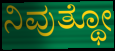
ನಿವುತ್ಥೋ